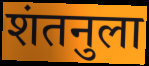
शंतनुला